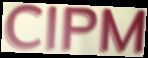
CIPM